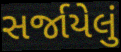
સર્જાયેલું